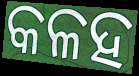
କଳହ